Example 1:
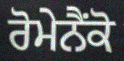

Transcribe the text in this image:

ਰੋਮੇਨੈਂਕੋ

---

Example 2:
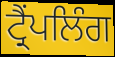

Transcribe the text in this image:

ਟ੍ਰੈਂਪਲਿੰਗ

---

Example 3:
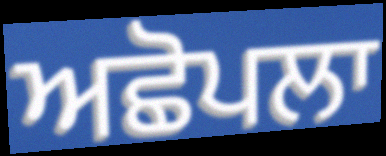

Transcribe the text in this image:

ਅਛੋਪਲਾ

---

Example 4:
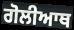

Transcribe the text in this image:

ਗੋਲੀਆਥ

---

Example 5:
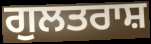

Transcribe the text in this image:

ਗੁਲਤਰਾਸ਼